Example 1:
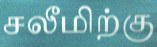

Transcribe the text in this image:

சலீமிற்கு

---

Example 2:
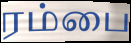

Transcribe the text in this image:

ரம்பை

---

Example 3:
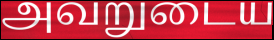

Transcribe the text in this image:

அவறுடைய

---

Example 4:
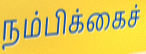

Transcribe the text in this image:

நம்பிக்கைச்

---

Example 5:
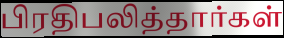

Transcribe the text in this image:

பிரதிபலித்தார்கள்